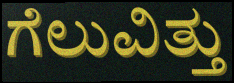
ಗೆಲುವಿತ್ತು